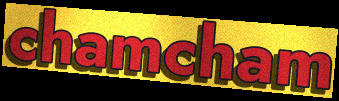
chamcham